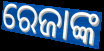
ରେଜାଙ୍କ